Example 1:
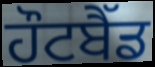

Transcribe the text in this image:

ਹੌਟਬੈੱਡ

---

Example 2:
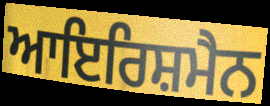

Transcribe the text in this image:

ਆਇਰਿਸ਼ਮੈਨ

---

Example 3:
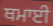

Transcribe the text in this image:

ਥਮਾਈ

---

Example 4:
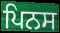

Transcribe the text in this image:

ਪਿਨਸ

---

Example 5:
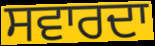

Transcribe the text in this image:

ਸਵਾਰਦਾ